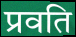
प्रवति